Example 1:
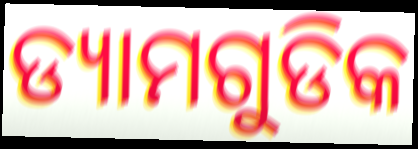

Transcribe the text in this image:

ଡ୍ୟାମଗୁଡିକ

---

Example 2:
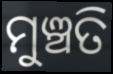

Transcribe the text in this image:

ମୁଞ୍ଚତି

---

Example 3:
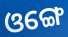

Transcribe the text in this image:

ଓଙ୍ଗେ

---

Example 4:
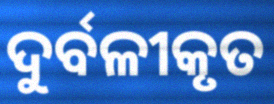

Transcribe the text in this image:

ଦୁର୍ବଳୀକୃତ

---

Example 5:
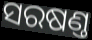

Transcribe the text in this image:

ସରଷଣ୍ତ